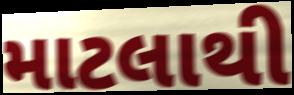
માટલાથી